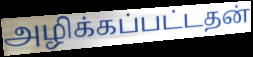
அழிக்கப்பட்டதன்